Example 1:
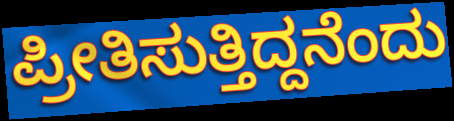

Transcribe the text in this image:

ಪ್ರೀತಿಸುತ್ತಿದ್ದನೆಂದು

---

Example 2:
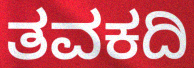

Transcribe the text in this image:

ತವಕದಿ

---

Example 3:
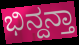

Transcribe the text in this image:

ಭಿನ್ದನ್ತಾ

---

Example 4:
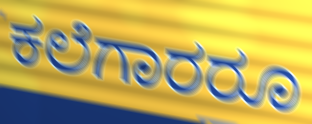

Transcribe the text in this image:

ಕಲೆಗಾರರೂ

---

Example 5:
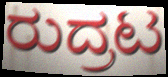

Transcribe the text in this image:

ರುದ್ರಟ